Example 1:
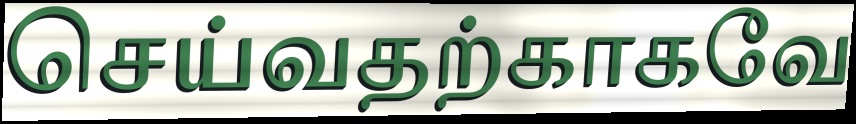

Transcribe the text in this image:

செய்வதற்காகவே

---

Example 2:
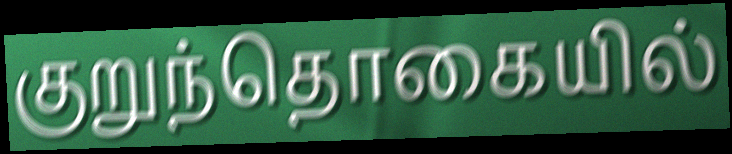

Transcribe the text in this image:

குறுந்தொகையில்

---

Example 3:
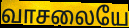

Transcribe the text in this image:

வாசலையே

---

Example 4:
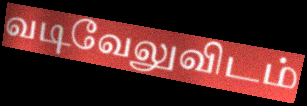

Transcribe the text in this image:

வடிவேலுவிடம்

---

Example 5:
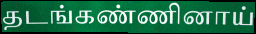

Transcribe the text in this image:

தடங்கண்ணினாய்